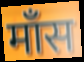
माँस